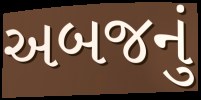
અબજનું